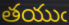
తయుఁ